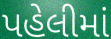
પહેલીમાં